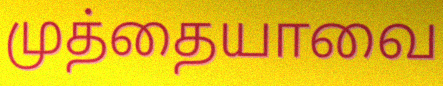
முத்தையாவை